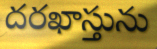
దరఖాస్తును